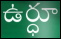
ఉర్ధూ